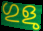
ഗുളു